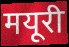
मयूरी